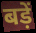
बड़ें